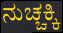
ನುಚ್ಚಕ್ಕಿ